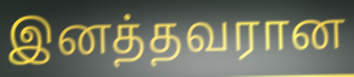
இனத்தவரான